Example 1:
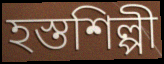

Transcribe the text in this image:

হস্তশিল্পী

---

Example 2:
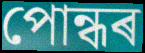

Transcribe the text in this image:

পোন্ধৰ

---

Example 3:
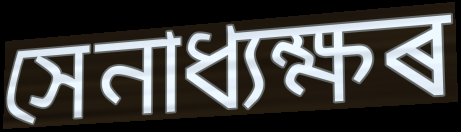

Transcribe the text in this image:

সেনাধ্যক্ষৰ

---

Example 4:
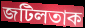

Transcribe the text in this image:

জটিলতাক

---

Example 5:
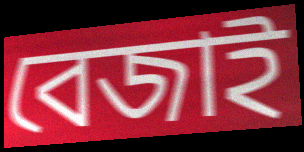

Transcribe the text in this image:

বেজাই